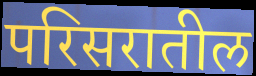
परिसरातील